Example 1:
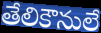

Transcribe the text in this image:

తేలికౌనులే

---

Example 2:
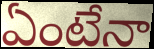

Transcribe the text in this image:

ఏంటేనా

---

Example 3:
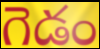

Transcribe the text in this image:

గెడం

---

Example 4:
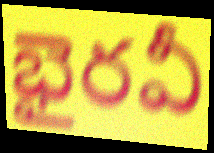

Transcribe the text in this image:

భైరవీ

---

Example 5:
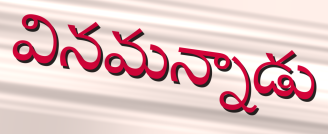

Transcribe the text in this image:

వినమన్నాడు